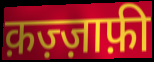
क़ज़्ज़ाफ़ी